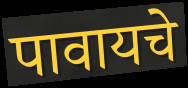
पावायचे